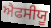
ਐਫਸੀਯੂ